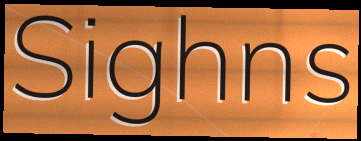
Sighns